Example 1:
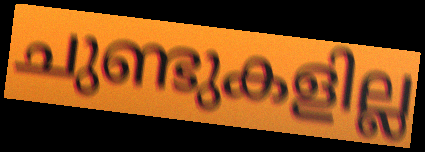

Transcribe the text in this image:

ചുണ്ടുകളില്ല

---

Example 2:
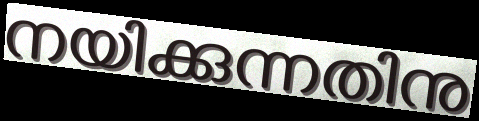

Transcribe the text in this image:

നയിക്കുന്നതിനു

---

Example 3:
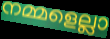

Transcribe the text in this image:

നമ്മളെല്ലാ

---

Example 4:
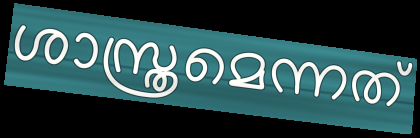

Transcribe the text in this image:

ശാസ്ത്രമെന്നത്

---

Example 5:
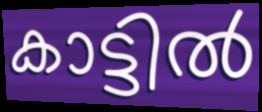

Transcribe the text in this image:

കാട്ടിൽ